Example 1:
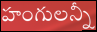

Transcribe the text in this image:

హంగులన్నీ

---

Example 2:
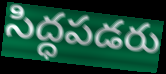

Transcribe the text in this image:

సిద్ధపడరు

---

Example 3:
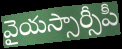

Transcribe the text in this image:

వైయస్సార్సీపీ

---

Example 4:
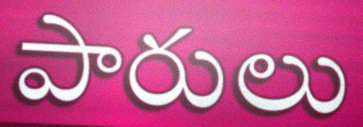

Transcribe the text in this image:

పారులు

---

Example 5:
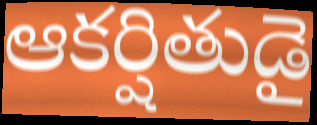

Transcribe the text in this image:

ఆకర్షితుడై